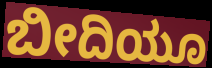
ಬೀದಿಯೂ